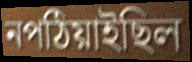
নপঠিয়াইছিল